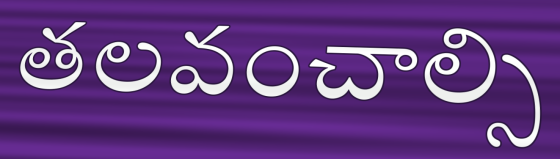
తలవంచాల్సి